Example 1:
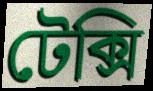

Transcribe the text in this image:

টেক্সি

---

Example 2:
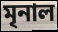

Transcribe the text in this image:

মৃনাল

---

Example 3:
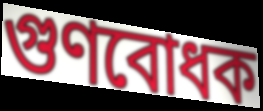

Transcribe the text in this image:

গুণবোধক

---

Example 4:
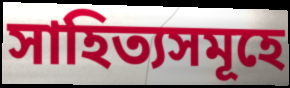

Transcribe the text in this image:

সাহিত্যসমূহে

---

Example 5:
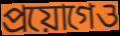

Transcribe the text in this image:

প্ৰয়োগেও